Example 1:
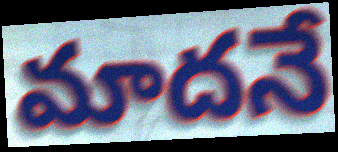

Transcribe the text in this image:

మాదనే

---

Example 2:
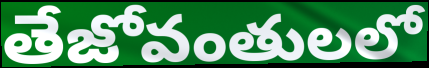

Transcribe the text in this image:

తేజోవంతులలో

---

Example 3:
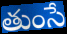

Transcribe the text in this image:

తుంసే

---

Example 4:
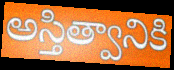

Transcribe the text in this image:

అస్తిత్వానికి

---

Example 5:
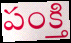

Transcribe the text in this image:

పంక్తి